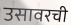
उसावरची